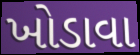
ખોડાવા